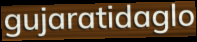
gujaratidaglo